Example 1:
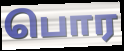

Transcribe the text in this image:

பொர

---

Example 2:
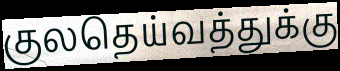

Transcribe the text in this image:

குலதெய்வத்துக்கு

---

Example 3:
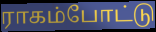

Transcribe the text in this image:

ராகம்போட்டு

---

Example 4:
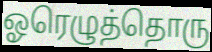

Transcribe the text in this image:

ஓரெழுத்தொரு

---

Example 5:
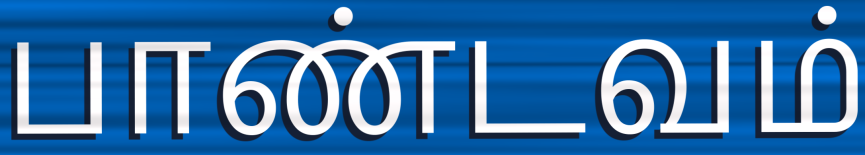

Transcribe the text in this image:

பாண்டவம்